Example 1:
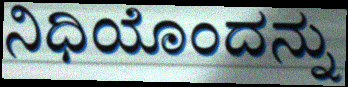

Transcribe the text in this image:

ನಿಧಿಯೊಂದನ್ನು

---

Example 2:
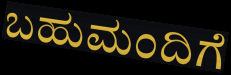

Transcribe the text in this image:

ಬಹುಮಂದಿಗೆ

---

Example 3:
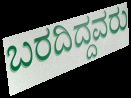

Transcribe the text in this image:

ಬರದಿದ್ದವರು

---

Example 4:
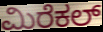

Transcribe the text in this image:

ಮಿರೆಕಲ್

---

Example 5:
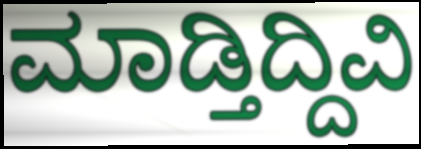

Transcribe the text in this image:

ಮಾಡ್ತಿದ್ದಿವಿ